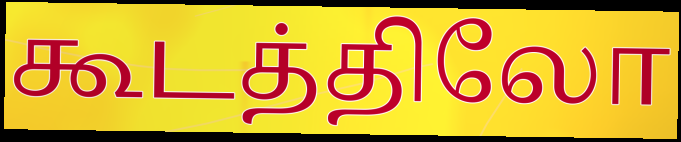
கூடத்திலோ